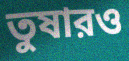
তুষারও